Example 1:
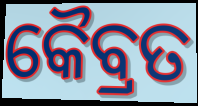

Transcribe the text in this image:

କୈବ୍ରତ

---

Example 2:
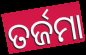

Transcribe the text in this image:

ତର୍ଜମା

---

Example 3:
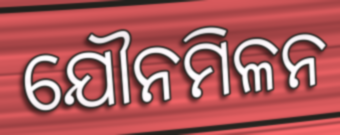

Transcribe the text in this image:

ଯୌନମିଳନ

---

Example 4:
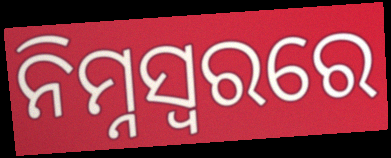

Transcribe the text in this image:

ନିମ୍ନସ୍ଵରରେ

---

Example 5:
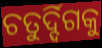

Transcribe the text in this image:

ଚତୁର୍ଦ୍ଦିଗକୁ